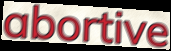
abortive